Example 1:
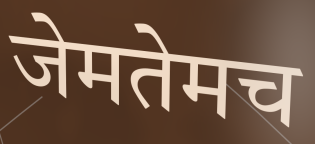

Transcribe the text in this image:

जेमतेमच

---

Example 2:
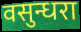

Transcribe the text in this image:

वसुन्धरा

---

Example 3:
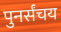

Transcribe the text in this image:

पुनर्संचय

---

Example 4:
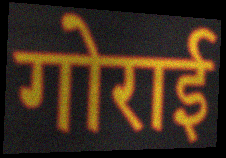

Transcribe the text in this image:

गोराई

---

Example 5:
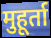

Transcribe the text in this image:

मुहूर्ता